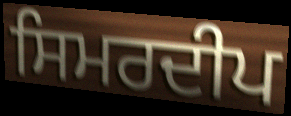
ਸਿਮਰਦੀਪ